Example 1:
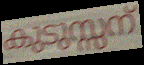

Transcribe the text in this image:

കുടുസ്സന്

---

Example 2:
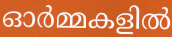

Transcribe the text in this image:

ഓർമ്മകളിൽ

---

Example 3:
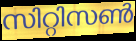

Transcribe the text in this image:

സിറ്റിസൺ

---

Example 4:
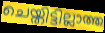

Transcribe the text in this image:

ചെയ്തിട്ടില്ലാത്ത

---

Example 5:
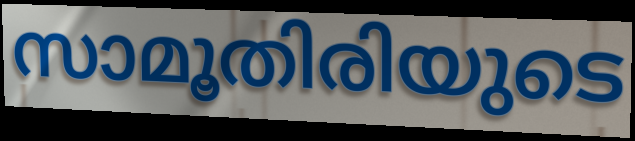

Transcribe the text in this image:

സാമൂതിരിയുടെ